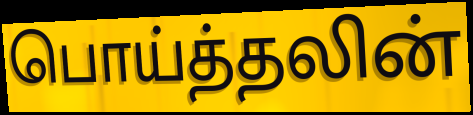
பொய்த்தலின்